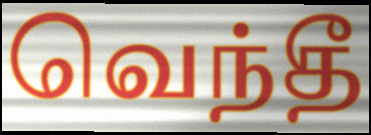
வெந்தீ